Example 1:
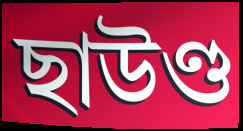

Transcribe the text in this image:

ছাউণ্ড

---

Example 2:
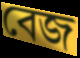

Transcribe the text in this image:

বেজ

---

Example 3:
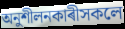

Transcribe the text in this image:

অনুশীলনকাৰীসকলে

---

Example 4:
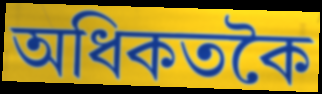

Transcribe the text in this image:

অধিকতকৈ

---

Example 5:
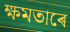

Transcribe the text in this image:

ক্ষমতাৰে